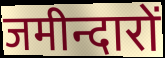
जमीन्दारों